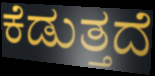
ಕೆಡುತ್ತದೆ